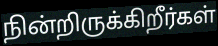
நின்றிருக்கிறீர்கள்